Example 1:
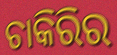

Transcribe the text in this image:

ଚାକିରିର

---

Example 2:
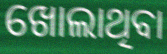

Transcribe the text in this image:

ଖୋଲାଥିବା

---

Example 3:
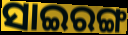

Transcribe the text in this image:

ସାଇରଙ୍ଗ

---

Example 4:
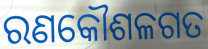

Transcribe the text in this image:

ରଣକୌଶଳଗତ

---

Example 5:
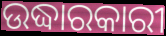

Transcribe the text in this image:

ଉଦ୍ଧାରକାରୀ